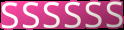
SSSSSS